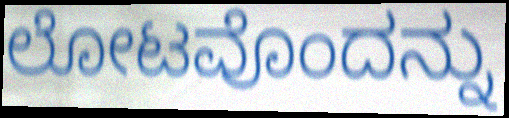
ಲೋಟವೊಂದನ್ನು